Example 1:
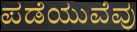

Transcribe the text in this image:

ಪಡೆಯುವೆವು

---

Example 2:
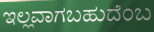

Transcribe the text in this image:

ಇಲ್ಲವಾಗಬಹುದೆಂಬ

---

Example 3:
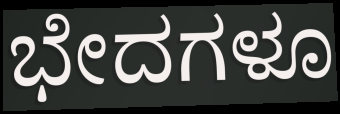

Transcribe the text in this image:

ಭೇದಗಳೂ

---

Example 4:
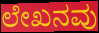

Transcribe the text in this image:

ಲೇಖನವು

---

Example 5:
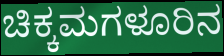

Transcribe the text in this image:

ಚಿಕ್ಕಮಗಳೂರಿನ